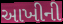
આખીની